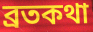
ব্রতকথা